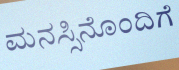
ಮನಸ್ಸಿನೊಂದಿಗೆ